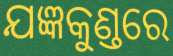
ଯଜ୍ଞକୁଣ୍ଡରେ